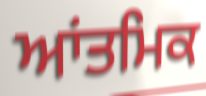
ਆਂਤਮਿਕ